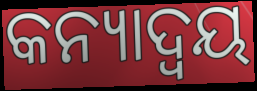
କନ୍ୟାଦ୍ୱୟ